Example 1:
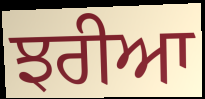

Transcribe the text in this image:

ਝਰੀਆ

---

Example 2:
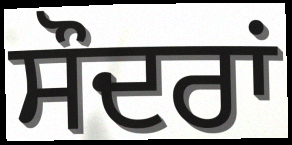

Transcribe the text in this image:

ਸੌਦਰਾਂ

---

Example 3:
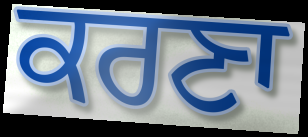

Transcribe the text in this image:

ਕਰਣਾ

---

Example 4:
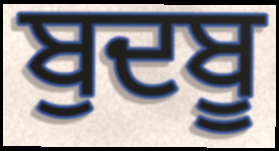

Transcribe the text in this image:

ਬੁਦਬੂ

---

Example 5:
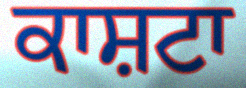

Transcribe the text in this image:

ਕਾਸ਼ਟਾ